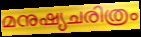
മനുഷ്യചരിത്രം